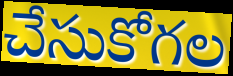
చేసుకోగల